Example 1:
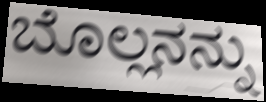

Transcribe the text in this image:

ಬೊಲ್ಲನನ್ನು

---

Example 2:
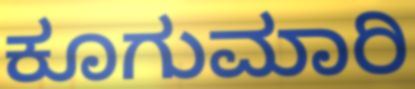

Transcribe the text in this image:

ಕೂಗುಮಾರಿ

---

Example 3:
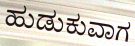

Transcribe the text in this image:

ಹುಡುಕುವಾಗ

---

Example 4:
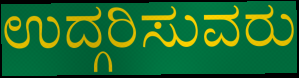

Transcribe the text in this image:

ಉದ್ಗರಿಸುವರು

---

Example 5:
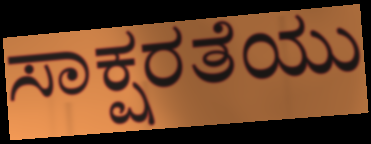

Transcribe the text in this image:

ಸಾಕ್ಷರತೆಯು